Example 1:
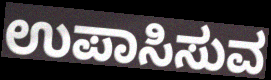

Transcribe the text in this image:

ಉಪಾಸಿಸುವ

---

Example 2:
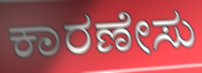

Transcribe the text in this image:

ಕಾರಣೇಸು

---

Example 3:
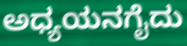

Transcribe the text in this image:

ಅಧ್ಯಯನಗೈದು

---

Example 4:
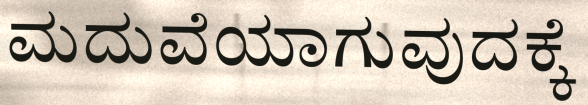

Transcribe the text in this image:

ಮದುವೆಯಾಗುವುದಕ್ಕೆ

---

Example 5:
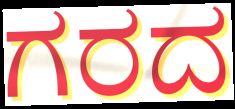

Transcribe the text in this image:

ಗರದ